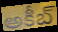
అకీబ్